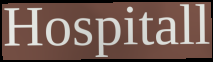
Hospitall